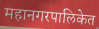
महानगरपालिकेत